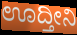
ಊದ್ತೀನಿ